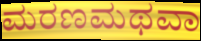
ಮರಣಮಥವಾ